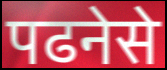
पढनेसे